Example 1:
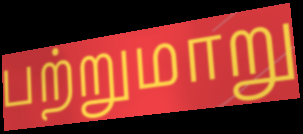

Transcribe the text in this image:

பற்றுமாறு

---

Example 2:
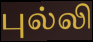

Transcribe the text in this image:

புல்லி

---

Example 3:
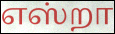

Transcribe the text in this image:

எஸ்றா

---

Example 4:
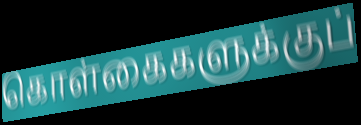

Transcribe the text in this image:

கொள்கைகளுக்குப்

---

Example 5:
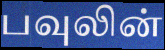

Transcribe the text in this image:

பவுலின்